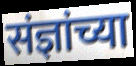
संज्ञांच्या